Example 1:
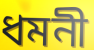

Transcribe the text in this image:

ধমনী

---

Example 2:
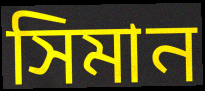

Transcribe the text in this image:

সিমান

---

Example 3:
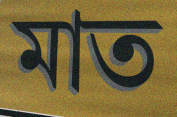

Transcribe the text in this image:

মাত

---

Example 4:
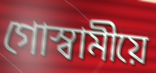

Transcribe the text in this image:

গোস্বামীয়ে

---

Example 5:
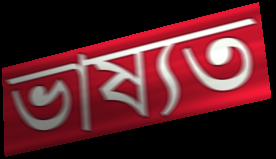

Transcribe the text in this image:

ভাষ্যত